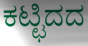
ಕಟ್ಟಿದದ